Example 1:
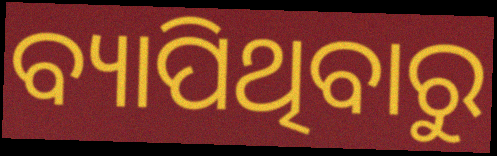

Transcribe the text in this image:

ବ୍ୟାପିଥିବାରୁ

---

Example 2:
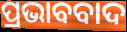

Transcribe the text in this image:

ପ୍ରଭାବବାଦ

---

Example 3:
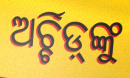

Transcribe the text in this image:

ଅର୍ଚ୍ଚିଡ଼୍‌ଙ୍କୁ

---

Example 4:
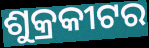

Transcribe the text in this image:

ଶୁକ୍ରକୀଟର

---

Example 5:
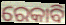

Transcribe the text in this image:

ରେକାବି